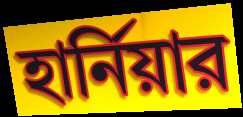
হার্নিয়ার